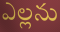
ఎల్లను